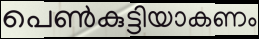
പെൺകുട്ടിയാകണം